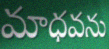
మాధవను